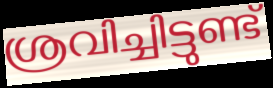
ശ്രവിച്ചിട്ടുണ്ട്